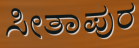
ಸೀತಾಪುರ